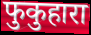
फुकुहारा